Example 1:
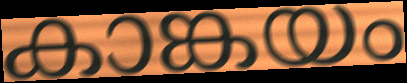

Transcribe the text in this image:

കാങ്കയം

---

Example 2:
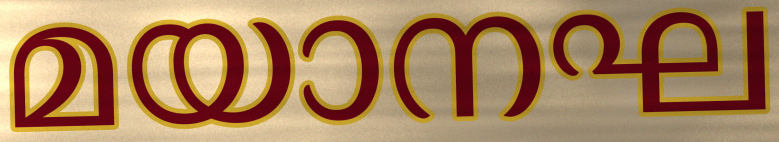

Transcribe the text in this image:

മയാനഘ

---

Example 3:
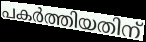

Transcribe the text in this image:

പകർത്തിയതിന്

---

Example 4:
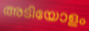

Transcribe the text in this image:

അടിയോളം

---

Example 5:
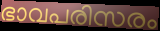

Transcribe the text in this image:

ഭാവപരിസരം